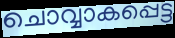
ചൊവ്വാകപ്പെട്ട